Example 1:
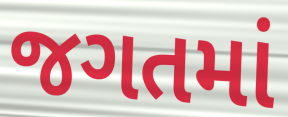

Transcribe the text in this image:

જગતમાં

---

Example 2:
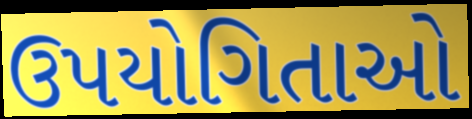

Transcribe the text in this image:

ઉપયોગિતાઓ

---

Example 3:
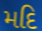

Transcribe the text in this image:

મદિ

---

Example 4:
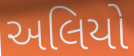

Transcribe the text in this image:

અલિયો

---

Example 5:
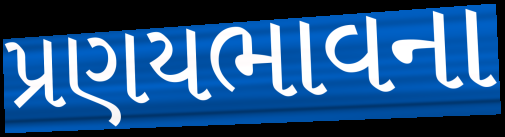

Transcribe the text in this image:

પ્રણયભાવના